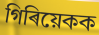
গিৰিয়েকক